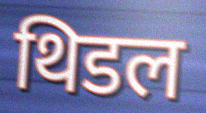
थिडल